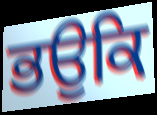
ਭਉਕਿ